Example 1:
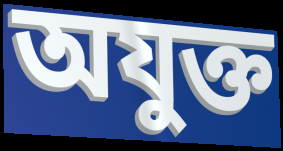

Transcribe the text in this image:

অযুক্ত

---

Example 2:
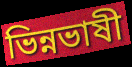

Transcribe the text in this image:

ভিন্নভাষী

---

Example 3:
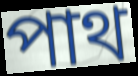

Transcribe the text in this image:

পাথ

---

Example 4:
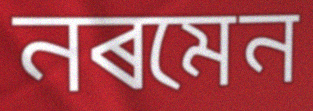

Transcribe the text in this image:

নৰমেন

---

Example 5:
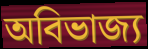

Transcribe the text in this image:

অবিভাজ্য